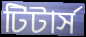
টিটার্স